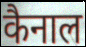
कैनाल